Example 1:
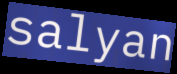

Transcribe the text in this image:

salyan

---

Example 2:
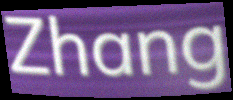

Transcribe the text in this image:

Zhang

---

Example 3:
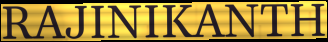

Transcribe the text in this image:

RAJINIKANTH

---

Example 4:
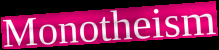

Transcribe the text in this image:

Monotheism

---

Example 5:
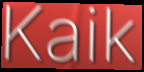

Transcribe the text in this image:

Kaik